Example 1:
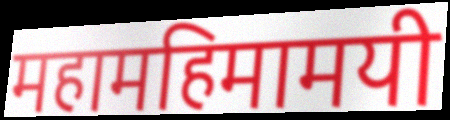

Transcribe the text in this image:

महामहिमामयी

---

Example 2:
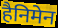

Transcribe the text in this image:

हैनिमेन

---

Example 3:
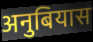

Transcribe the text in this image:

अनुबियास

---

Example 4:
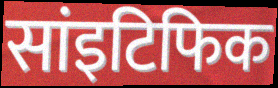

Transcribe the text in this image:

सांइटिफिक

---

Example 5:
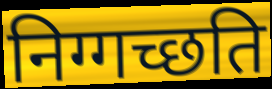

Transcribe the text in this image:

निग्गच्छति